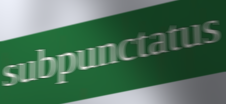
subpunctatus